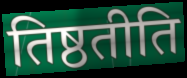
तिष्ठतीति